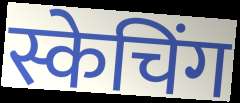
स्केचिंग